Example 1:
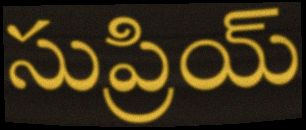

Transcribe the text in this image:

సుప్రియ్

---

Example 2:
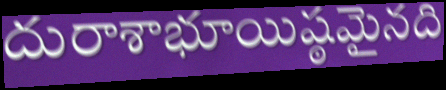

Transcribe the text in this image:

దురాశాభూయిష్ఠమైనది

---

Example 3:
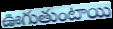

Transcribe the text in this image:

ఊగుతుంటాయి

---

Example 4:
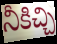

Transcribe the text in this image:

నీకిచ్చి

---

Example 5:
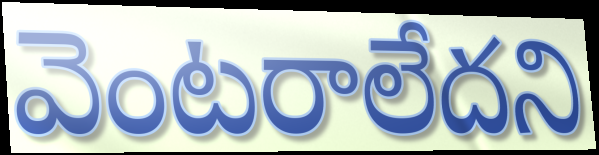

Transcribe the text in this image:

వెంటరాలేదని